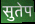
सुतेप